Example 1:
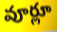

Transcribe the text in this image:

వూర్లూ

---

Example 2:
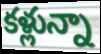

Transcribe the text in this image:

కళ్లున్నా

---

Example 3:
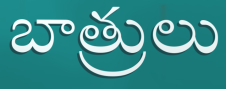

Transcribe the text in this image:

బాత్రులు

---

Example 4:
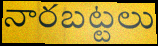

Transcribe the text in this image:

నారబట్టలు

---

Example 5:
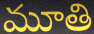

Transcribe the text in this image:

మూతి